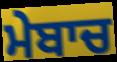
ਮੇਬਾਚ